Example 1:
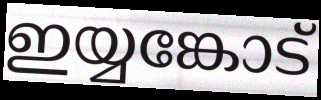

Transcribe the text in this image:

ഇയ്യങ്കോട്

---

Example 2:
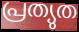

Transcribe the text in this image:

പ്രത്യുത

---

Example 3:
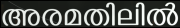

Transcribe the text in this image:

അരമതിലിൽ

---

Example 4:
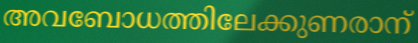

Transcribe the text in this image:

അവബോധത്തിലേക്കുണരാന്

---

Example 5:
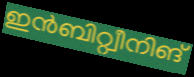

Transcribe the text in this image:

ഇൻബിറ്റ്വീനിങ്